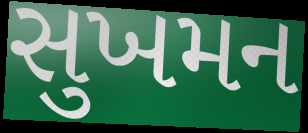
સુખમન